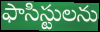
ఫాసిస్టులను